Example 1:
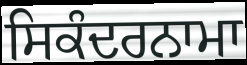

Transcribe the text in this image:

ਸਿਕੰਦਰਨਾਮਾ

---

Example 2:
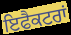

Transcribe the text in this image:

ਇਫੈਕਟਰਾਂ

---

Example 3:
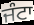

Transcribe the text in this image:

ਜੰਟਾ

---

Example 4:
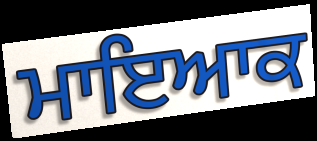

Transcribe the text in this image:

ਮਾਇਆਕ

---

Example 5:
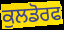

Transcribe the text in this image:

ਕੁਲਡੋਰਫ